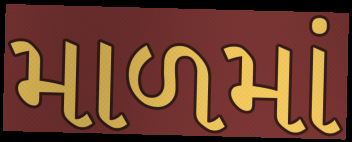
માળમાં